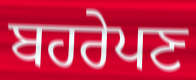
ਬਹਰੇਪਣ